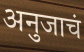
अनुजाचं